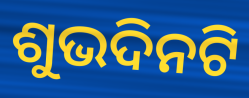
ଶୁଭଦିନଟି